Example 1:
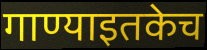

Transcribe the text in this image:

गाण्याइतकेच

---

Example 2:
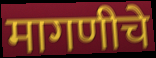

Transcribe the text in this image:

मागणीचे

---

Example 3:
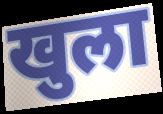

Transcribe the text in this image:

खुला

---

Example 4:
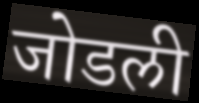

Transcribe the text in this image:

जोडली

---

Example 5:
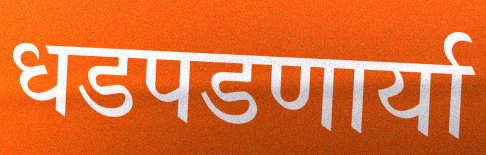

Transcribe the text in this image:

धडपडणार्या